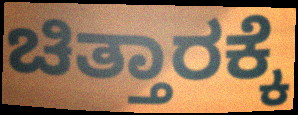
ಚಿತ್ತಾರಕ್ಕೆ